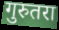
गुरुतरा